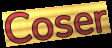
Coser